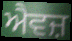
ਐਵਜ਼